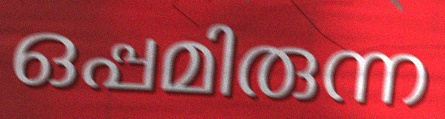
ഒപ്പമിരുന്ന